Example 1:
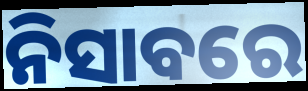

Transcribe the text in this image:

ନିସାବରେ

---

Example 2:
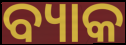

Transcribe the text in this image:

ବ୍ୟାକ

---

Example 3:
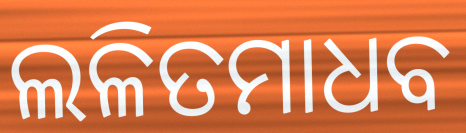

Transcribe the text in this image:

ଲଳିତମାଧବ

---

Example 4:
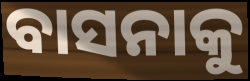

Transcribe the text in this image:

ବାସନାକୁ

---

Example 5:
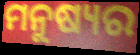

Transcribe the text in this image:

ମନୁଷ୍ୟର